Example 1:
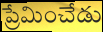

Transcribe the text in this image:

ప్రేమించేడు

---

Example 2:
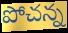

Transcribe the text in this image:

పోచన్న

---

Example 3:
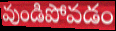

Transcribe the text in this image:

వుండిపోవడం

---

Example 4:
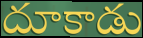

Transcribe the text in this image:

దూకాడు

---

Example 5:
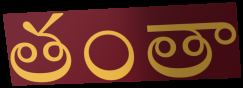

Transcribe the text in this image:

తంతా